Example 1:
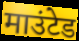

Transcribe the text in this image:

माउंटेड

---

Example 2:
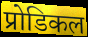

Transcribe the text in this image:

प्रोडिकल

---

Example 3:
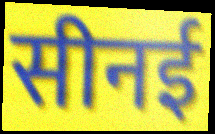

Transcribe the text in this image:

सीनई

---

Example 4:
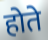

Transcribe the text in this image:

होते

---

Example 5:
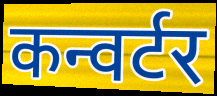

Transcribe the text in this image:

कन्वर्टर